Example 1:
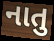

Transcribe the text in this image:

નાતુ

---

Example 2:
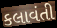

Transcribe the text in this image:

કલાવંતી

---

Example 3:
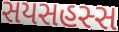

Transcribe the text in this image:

સયસહસ્સ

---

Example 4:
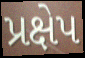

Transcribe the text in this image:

પ્રક્ષેપ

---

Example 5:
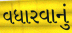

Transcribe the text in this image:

વધારવાનું